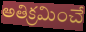
అతిక్రమించే